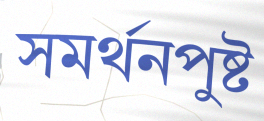
সমর্থনপুষ্ট